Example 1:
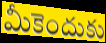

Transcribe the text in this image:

మీకెందుకు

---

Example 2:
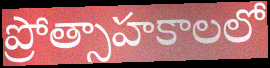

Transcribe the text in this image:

ప్రోత్సాహకాలలో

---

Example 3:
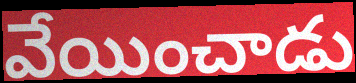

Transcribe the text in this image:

వేయించాడు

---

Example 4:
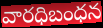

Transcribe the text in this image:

వారధిబంధన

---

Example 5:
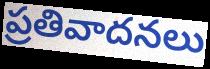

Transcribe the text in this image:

ప్రతివాదనలు